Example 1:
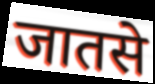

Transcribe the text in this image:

जातसे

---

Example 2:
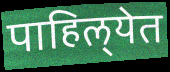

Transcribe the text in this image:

पाहिल्येत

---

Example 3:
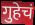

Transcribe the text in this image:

गुहेचं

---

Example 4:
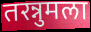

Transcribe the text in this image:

तरन्नुमला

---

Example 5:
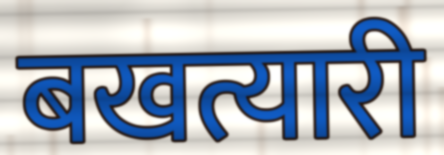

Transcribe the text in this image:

बखत्यारी